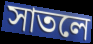
সাতলে